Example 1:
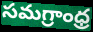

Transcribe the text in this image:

సమగ్రాంధ్ర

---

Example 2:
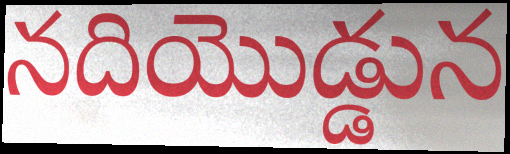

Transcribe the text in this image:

నదియొడ్డున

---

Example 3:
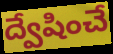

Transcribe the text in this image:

ద్వేషించే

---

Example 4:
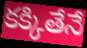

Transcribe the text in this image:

కక్కితేనే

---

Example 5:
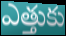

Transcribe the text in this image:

ఎత్తుకు